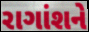
રાગાંશને